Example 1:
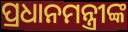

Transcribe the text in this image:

ପ୍ରଧାନମନ୍ତ୍ରୀଙ୍କ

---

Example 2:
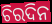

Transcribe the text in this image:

ଚିରଦିନ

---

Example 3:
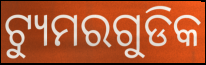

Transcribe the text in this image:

ଟ୍ୟୁମରଗୁଡିକ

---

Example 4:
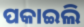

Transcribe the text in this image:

ପକାଇଲି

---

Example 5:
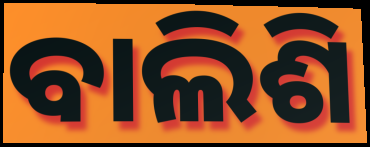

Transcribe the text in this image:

ବାଲିଶି